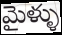
మైళ్ళు